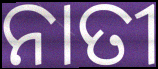
ନାତୀ